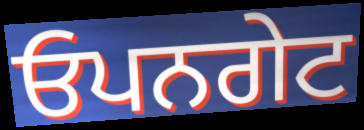
ਓਪਨਗੇਟ